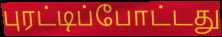
புரட்டிப்போட்டது